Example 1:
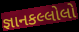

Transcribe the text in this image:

જ્ઞાનકલ્લોલો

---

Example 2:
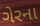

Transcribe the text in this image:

ગેરના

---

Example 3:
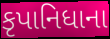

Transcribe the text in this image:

કૃપાનિધાના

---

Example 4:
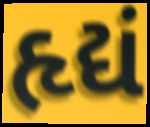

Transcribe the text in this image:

હૃદ્યં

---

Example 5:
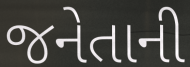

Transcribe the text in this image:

જનેતાની